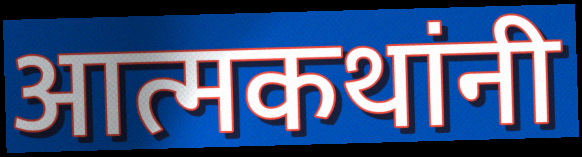
आत्मकथांनी